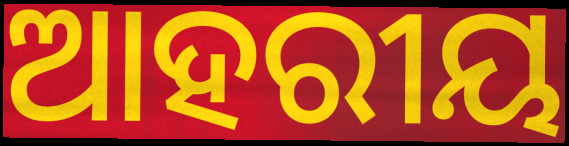
ଆହରୀୟ